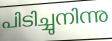
പിടിച്ചുനിന്നു